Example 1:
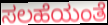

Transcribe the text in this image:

ಸಲಹೆಯಂತೆ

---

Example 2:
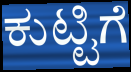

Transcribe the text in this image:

ಕುಟ್ಟಿಗೆ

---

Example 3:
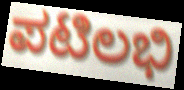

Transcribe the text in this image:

ಪಟಿಲಭಿ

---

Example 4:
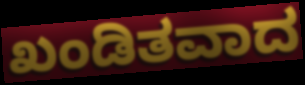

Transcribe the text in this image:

ಖಂಡಿತವಾದ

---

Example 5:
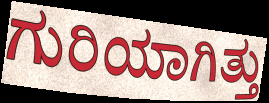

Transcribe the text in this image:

ಗುರಿಯಾಗಿತ್ತು